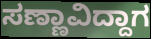
ಸಣ್ಣಾವಿದ್ದಾಗ